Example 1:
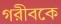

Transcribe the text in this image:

গরীবকে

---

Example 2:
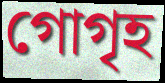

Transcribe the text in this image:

গোগৃহ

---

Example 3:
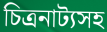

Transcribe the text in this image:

চিত্রনাট্যসহ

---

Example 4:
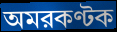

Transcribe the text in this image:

অমরকণ্টক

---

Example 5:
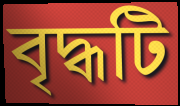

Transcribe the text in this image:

বৃদ্ধটি